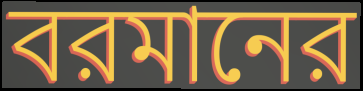
বরমানের